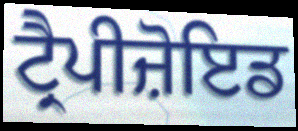
ਟ੍ਰੈਪੀਜ਼ੋਇਡ